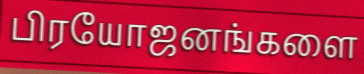
பிரயோஜனங்களை